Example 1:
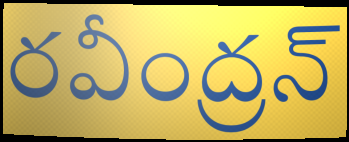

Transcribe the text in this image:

రవీంద్రన్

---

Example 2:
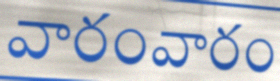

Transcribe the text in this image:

వారంవారం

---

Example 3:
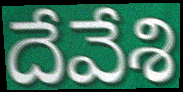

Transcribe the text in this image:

దేవేశి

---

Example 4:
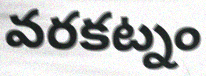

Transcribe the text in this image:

వరకట్నం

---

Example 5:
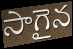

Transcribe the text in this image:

సాగైన